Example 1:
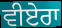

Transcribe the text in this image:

ਵੀਏਰਾ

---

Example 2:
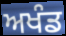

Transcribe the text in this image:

ਅਖੰਡ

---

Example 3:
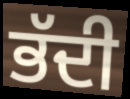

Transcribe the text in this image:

ਭੱਦੀ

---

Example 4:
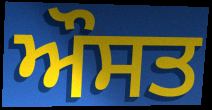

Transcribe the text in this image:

ਔਸਤ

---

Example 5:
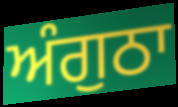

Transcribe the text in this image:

ਅੰਗੁਠਾ